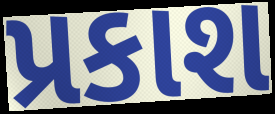
પ્રકાશ